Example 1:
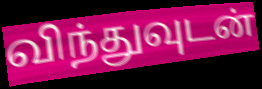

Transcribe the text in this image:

விந்துவுடன்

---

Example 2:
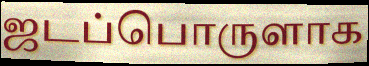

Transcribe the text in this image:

ஜடப்பொருளாக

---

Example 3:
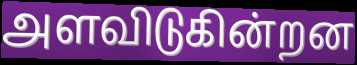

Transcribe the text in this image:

அளவிடுகின்றன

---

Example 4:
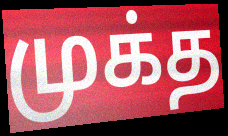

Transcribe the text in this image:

முக்த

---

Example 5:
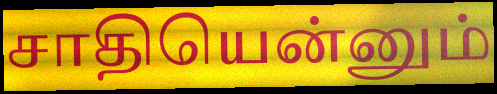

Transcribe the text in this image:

சாதியென்னும்